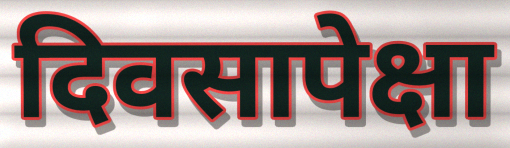
दिवसापेक्षा